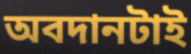
অবদানটাই